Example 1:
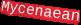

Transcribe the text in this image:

Mycenaean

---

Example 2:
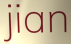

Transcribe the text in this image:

jian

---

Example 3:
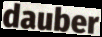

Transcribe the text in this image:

dauber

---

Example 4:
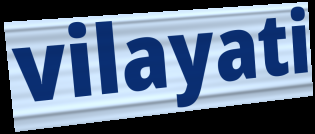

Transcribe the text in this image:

vilayati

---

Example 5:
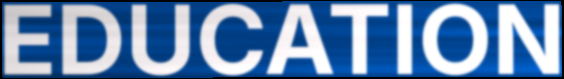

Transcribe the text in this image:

EDUCATION